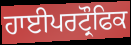
ਹਾਈਪਰਟ੍ਰੌਫਿਕ